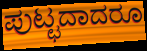
ಪುಟ್ಟದಾದರೂ